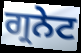
ਗ੍ਰਨੇਟ